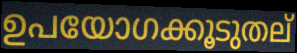
ഉപയോഗക്കൂടുതല്